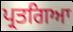
ਪ੍ਰਤਗਿਆ